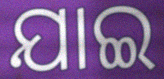
ଯାଇ